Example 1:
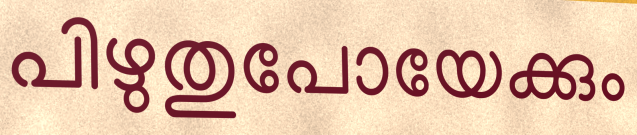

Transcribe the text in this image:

പിഴുതുപോയേക്കും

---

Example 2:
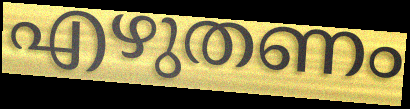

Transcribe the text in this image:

എഴുതണം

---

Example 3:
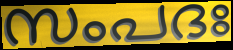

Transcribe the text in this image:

സംപദഃ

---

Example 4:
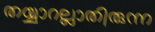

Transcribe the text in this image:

തയ്യാറല്ലാതിരുന്ന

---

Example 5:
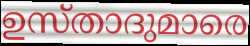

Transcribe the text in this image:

ഉസ്താദുമാരെ